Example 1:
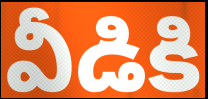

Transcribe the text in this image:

వీడికి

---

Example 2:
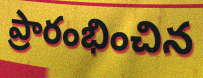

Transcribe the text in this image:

ప్రారంభించిన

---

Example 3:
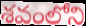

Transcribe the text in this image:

శవంలోని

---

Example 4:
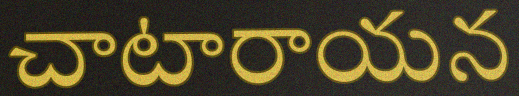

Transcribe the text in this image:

చాటారాయన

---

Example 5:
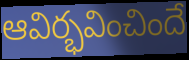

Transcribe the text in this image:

ఆవిర్భవించిందే